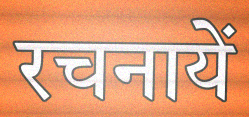
रचनायें